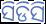
ସିଡିସି